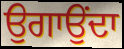
ਉਗਾਉਂਦਾ